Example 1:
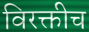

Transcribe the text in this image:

विरक्तीच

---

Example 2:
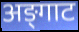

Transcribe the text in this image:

अङ्गाट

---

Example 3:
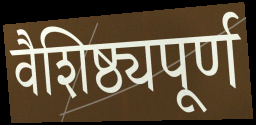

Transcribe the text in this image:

वैशिष्ठ्यपूर्ण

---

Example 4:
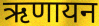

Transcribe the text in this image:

ऋणायन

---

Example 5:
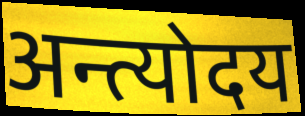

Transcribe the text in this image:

अन्त्योदय